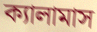
ক্যালামাস